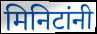
मिनिटांनी